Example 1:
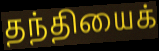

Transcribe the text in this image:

தந்தியைக்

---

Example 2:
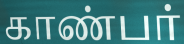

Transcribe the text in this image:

காண்பர்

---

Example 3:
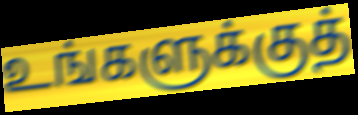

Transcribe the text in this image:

உங்களுக்குத்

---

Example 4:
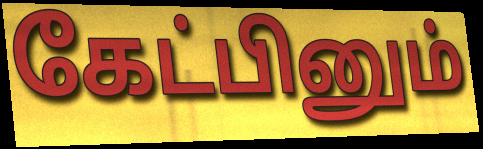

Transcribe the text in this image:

கேட்பினும்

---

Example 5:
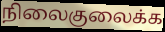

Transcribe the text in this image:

நிலைகுலைக்க